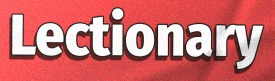
Lectionary